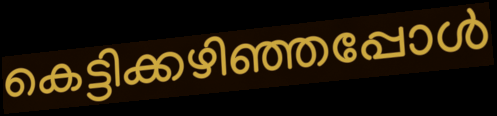
കെട്ടിക്കഴിഞ്ഞപ്പോൾ